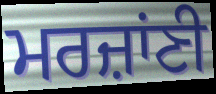
ਮਰਜ਼ਾਂਣੀ